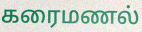
கரைமணல்